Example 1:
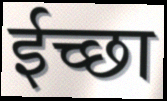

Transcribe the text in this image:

ईच्छा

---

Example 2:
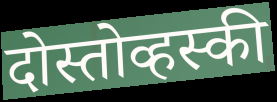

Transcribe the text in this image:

दोस्तोव्हस्की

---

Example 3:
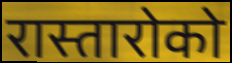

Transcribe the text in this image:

रास्तारोको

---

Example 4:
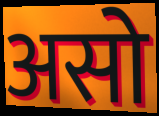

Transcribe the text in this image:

असो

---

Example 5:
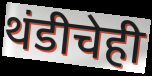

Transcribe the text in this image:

थंडीचेही